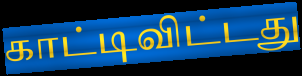
காட்டிவிட்டது